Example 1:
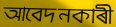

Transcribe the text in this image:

আবেদনকাৰী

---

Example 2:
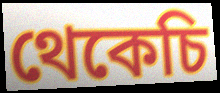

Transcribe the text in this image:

থেকেচি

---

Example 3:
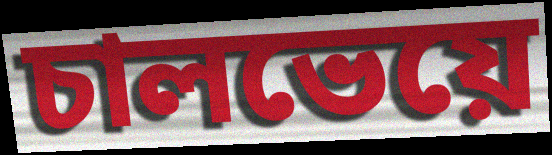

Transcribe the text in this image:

চালভেয়ে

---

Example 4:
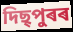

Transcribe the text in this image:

দিছ্পুৰৰ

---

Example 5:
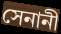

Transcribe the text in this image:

সেনানী